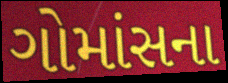
ગોમાંસના